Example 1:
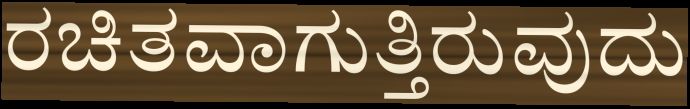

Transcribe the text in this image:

ರಚಿತವಾಗುತ್ತಿರುವುದು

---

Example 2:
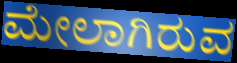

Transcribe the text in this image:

ಮೇಲಾಗಿರುವ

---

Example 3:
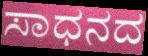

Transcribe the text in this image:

ಸಾಧನದ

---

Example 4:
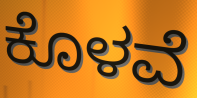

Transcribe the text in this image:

ಕೊಳವೆ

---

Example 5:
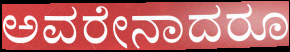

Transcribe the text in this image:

ಅವರೇನಾದರೂ